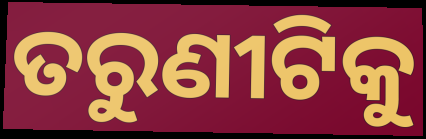
ତରୁଣୀଟିକୁ